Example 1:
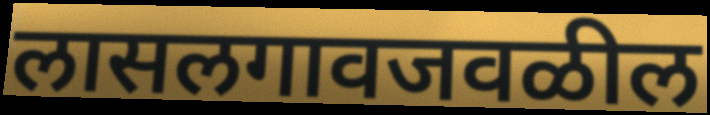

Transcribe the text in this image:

लासलगावजवळील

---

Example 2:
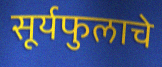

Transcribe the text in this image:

सूर्यफुलाचे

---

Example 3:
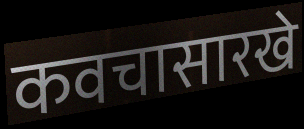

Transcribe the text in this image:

कवचासारखे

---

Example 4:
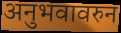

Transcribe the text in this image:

अनुभवावरुन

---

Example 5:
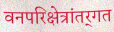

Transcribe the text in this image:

वनपरिक्षेत्रांतर्गत